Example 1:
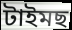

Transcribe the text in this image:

টাইমছ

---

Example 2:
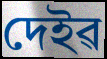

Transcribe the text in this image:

দেইৱ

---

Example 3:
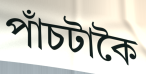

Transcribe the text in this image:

পাঁচটাকৈ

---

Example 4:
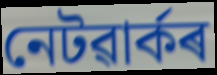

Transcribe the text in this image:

নেটৱাৰ্কৰ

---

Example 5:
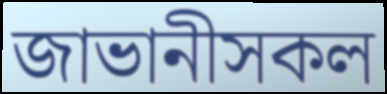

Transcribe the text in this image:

জাভানীসকল